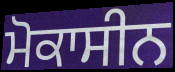
ਮੋਕਾਸੀਨ